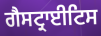
ਗੈਸਟ੍ਰਾਈਟਿਸ